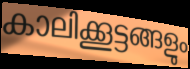
കാലിക്കൂട്ടങ്ങളും